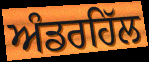
ਅੰਡਰਹਿੱਲ